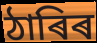
ঠাৰিৰ